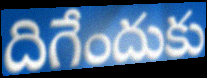
దిగేందుకు